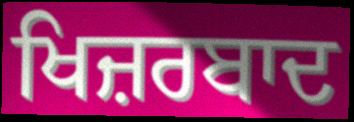
ਖਿਜ਼ਰਬਾਦ